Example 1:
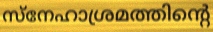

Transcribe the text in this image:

സ്നേഹാശ്രമത്തിന്റെ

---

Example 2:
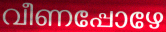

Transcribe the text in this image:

വീണപ്പോഴേ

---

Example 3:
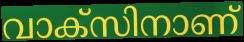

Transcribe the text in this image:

വാക്സിനാണ്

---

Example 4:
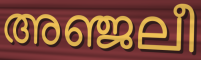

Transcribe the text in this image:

അഞ്ജലീ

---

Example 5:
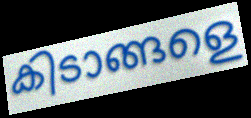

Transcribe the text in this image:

കിടാങ്ങളെ